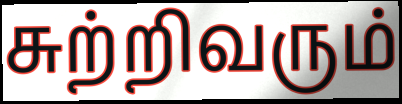
சுற்றிவரும்